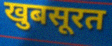
खुबसूरत